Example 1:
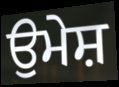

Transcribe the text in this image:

ਉਮੇਸ਼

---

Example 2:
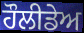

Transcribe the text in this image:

ਹੌਲੀਡੇਅ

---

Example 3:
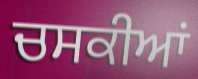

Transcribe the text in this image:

ਚਸਕੀਆਂ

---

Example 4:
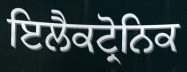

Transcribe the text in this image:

ਇਲੈਕਟ੍ਰੋਨਿਕ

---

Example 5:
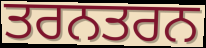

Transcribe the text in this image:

ਤਰਨਤਰਨ